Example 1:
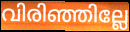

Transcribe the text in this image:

വിരിഞ്ഞില്ലേ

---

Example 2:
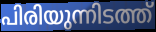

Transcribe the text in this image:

പിരിയുന്നിടത്ത്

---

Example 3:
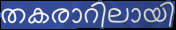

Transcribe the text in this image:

തകരാറിലായി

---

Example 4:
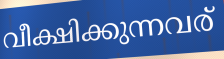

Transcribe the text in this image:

വീക്ഷിക്കുന്നവര്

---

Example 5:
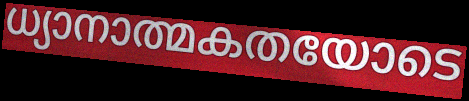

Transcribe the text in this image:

ധ്യാനാത്മകതയോടെ